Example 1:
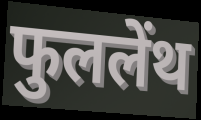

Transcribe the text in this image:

फुललेंथ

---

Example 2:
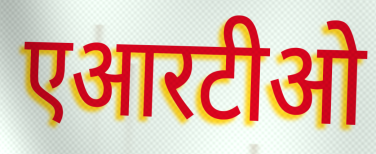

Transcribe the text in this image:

एआरटीओ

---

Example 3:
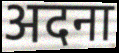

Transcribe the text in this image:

अदना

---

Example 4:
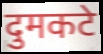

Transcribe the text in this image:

दुमकटे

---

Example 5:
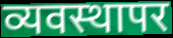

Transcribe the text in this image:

व्यवस्थापर